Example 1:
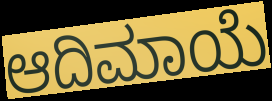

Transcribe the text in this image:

ಆದಿಮಾಯೆ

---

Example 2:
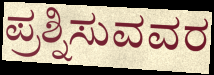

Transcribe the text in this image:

ಪ್ರಶ್ನಿಸುವವರ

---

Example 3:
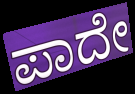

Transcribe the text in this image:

ಪಾದೇ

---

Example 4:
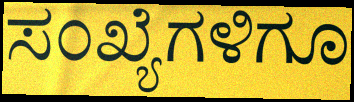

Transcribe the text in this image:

ಸಂಖ್ಯೆಗಳಿಗೂ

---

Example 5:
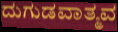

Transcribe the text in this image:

ದುಗುಡವಾತ್ಮವ